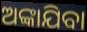
ଅଙ୍କାଯିବା